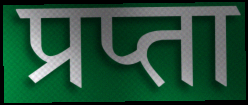
प्रप्ता